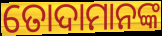
ତୋଦାମାନଙ୍କ